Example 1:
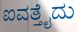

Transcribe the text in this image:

ಐವತ್ತೈದು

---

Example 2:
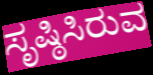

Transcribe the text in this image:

ಸೃಷ್ಠಿಸಿರುವ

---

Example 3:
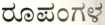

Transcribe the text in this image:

ರೂಪಂಗಳ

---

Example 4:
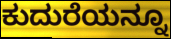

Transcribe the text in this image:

ಕುದುರೆಯನ್ನೂ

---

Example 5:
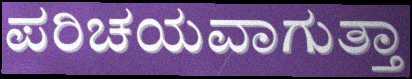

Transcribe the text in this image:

ಪರಿಚಯವಾಗುತ್ತಾ